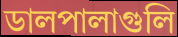
ডালপালাগুলি